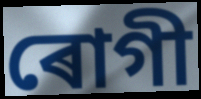
ৰোগী